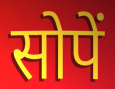
सोपें